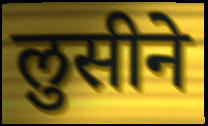
लुसीने